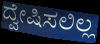
ದ್ವೇಷಿಸಲಿಲ್ಲ